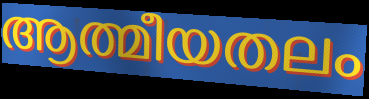
ആത്മീയതലം